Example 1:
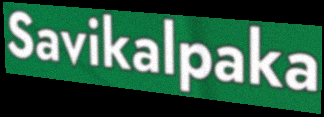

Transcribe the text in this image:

Savikalpaka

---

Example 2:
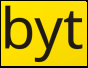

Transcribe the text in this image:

byt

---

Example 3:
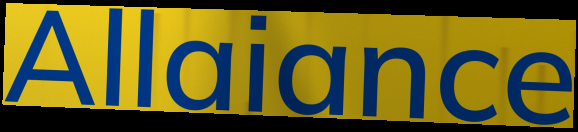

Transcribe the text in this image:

Allaiance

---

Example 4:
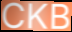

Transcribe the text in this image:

CKB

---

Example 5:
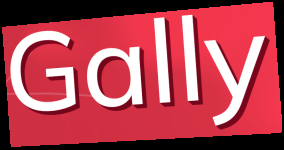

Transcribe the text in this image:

Gally